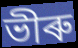
ভীৰু